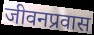
जीवनप्रवास